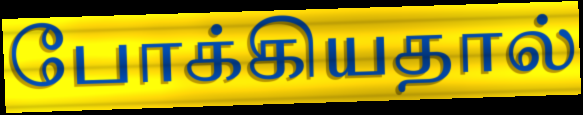
போக்கியதால்